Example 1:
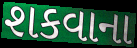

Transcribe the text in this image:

શકવાના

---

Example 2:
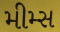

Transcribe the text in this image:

મીમ્સ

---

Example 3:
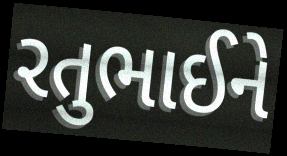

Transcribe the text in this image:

રતુભાઈને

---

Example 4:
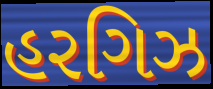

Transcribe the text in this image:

હરગિઝ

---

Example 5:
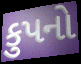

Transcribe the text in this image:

કુપનો